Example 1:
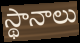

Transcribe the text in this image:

స్థానాలు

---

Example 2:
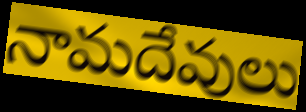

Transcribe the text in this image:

నామదేవులు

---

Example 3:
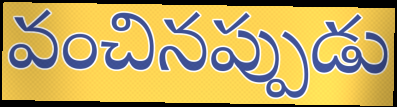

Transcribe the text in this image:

వంచినప్పుడు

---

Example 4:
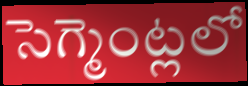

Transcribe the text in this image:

సెగ్మెంట్లలో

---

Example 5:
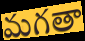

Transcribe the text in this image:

మగతా